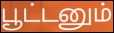
பூட்டனும்